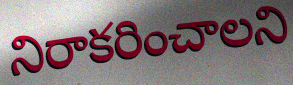
నిరాకరించాలని